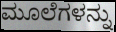
ಮೂಲೆಗಳನ್ನು